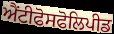
ਐਂਟੀਫੋਸਫੋਲਿਪੀਡ